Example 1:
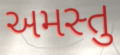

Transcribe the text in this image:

અમસ્તુ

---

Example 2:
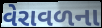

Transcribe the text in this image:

વેરાવળના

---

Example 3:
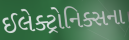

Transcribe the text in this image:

ઈલેક્ટ્રોનિક્સના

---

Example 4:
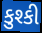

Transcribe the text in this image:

કુશ્કી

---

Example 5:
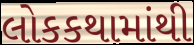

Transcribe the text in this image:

લોકકથામાંથી